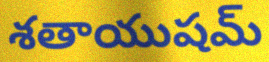
శతాయుషమ్